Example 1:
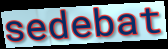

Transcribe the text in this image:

sedebat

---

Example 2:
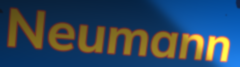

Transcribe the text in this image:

Neumann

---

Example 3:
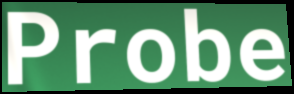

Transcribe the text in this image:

Probe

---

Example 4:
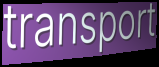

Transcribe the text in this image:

transport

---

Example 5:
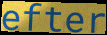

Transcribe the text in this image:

efter